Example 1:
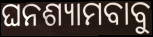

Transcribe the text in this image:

ଘନଶ୍ୟାମବାବୁ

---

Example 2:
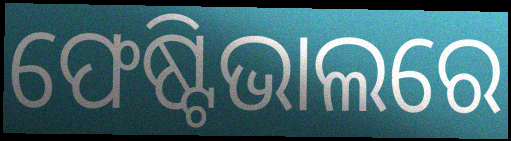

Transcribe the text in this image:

ଫେଷ୍ଟିଭାଲରେ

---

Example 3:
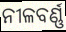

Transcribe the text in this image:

ନୀଳବର୍ଣ୍ଣ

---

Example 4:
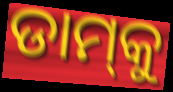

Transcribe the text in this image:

ଡାମ୍‍କୁ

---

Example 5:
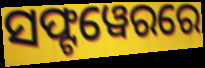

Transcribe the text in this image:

ସଫ୍ଟୱେରରେ